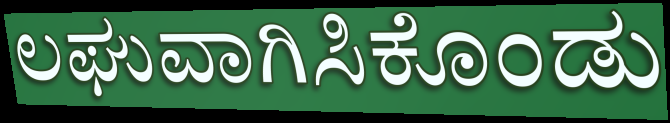
ಲಘುವಾಗಿಸಿಕೊಂಡು